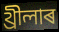
থ্ৰীলাৰ